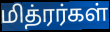
மித்ரர்கள்